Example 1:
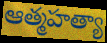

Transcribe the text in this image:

ఆత్మహత్యా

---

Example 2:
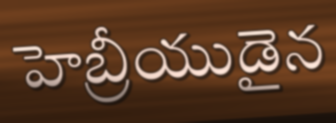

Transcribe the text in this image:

హెబ్రీయుడైన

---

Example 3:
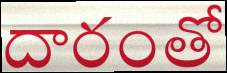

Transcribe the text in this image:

దారంతో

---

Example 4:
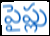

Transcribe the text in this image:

పైప్లు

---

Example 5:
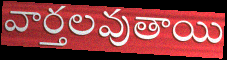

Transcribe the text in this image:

వార్తలవుతాయి